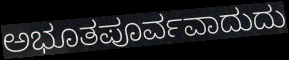
ಅಭೂತಪೂರ್ವವಾದುದು